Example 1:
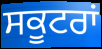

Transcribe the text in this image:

ਸਕੂਟਰਾਂ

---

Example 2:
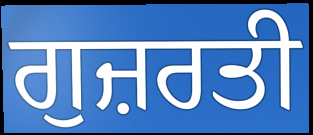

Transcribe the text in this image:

ਗੁਜ਼ਰਤੀ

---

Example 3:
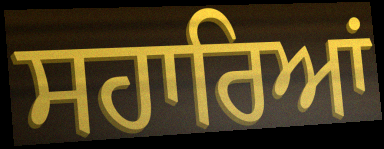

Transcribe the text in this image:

ਸਹਾਰਿਆਂ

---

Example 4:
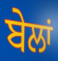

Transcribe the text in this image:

ਬੇਲਾਂ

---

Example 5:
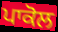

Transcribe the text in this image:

ਪਾਕੋਲ